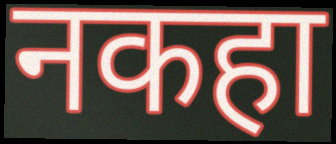
नकहा